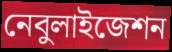
নেবুলাইজেশন